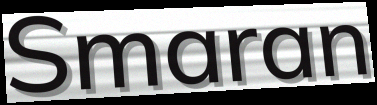
Smaran